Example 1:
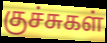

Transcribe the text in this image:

குச்சுகள்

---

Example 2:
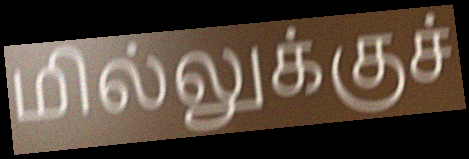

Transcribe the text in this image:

மில்லுக்குச்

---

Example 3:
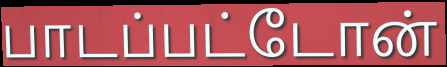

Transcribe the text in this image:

பாடப்பட்டோன்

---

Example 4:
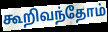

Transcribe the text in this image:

கூறிவந்தோம்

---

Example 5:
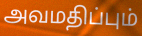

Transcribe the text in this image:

அவமதிப்பும்